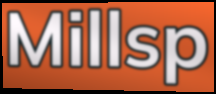
Millsp